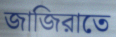
জাজিরাতে